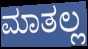
ಮಾತಲ್ಲ